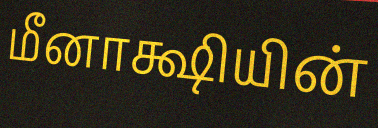
மீனாக்ஷியின்